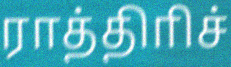
ராத்திரிச்